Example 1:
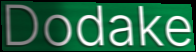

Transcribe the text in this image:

Dodake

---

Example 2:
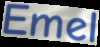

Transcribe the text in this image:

Emel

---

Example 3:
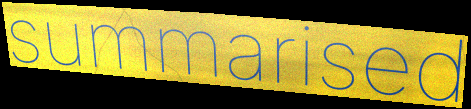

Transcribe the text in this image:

summarised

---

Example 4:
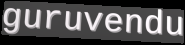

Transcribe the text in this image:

guruvendu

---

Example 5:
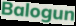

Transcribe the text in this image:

Balogun